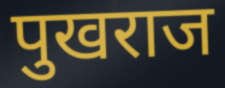
पुखराज